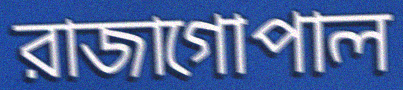
রাজাগোপাল